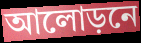
আলোড়নে